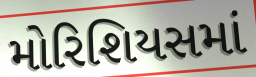
મોરિશિયસમાં